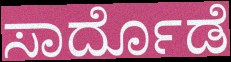
ಸಾರ್ದೊಡೆ